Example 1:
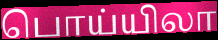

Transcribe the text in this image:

பொய்யிலா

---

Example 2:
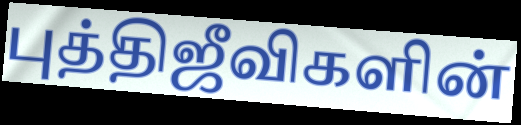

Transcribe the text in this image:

புத்திஜீவிகளின்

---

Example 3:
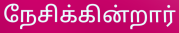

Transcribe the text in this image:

நேசிக்கின்றார்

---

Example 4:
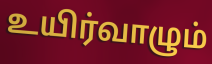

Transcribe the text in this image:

உயிர்வாழும்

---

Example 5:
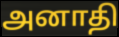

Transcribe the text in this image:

அனாதி